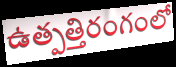
ఉత్పత్తిరంగంలో